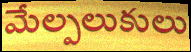
మేల్పలుకులు